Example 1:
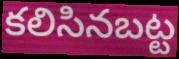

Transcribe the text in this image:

కలిసినబట్ట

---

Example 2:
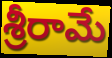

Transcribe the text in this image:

శ్రీరామే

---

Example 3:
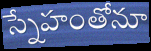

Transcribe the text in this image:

స్నేహంతోనూ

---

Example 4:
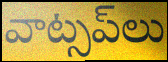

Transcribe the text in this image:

వాట్సప్‌లు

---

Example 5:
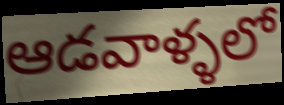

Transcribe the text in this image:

ఆడవాళ్ళలో